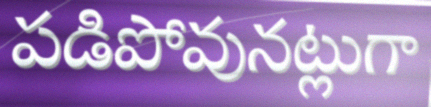
పడిపోవునట్లుగా